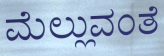
ಮೆಲ್ಲುವಂತೆ